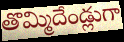
తొమ్మిదేండ్లుగా